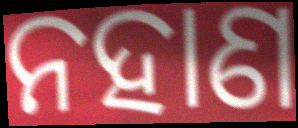
ନହାଣ